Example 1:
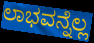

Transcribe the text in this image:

ಲಾಭವನ್ನೆಲ್ಲ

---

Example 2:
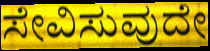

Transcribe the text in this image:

ಸೇವಿಸುವುದೇ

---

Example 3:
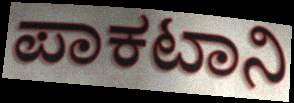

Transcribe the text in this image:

ಪಾಕಟಾನಿ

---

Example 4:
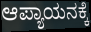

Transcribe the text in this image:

ಆಪ್ಯಾಯನಕ್ಕೆ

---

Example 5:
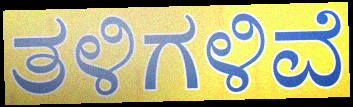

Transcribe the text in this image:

ತಳಿಗಳಿವೆ